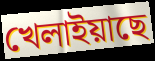
খেলাইয়াছে